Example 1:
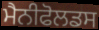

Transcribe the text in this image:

ਮੈਨੀਫੋਲਡਸ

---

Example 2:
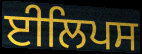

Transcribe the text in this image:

ਈਲਿਪਸ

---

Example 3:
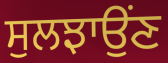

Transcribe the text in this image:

ਸੁਲਝਾਉਂਣ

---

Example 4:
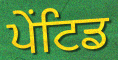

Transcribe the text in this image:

ਪੇਂਟਿਡ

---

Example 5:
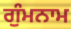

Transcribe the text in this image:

ਗੁੰਮਨਾਮ